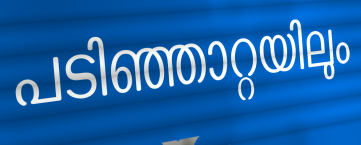
പടിഞ്ഞാറ്റയിലും